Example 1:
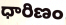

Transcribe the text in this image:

ధారిణం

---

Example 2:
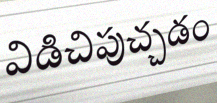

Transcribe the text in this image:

విడిచిపుచ్చడం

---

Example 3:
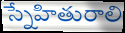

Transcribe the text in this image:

స్నేహితురాలి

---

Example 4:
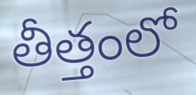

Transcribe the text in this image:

తీత్తంలో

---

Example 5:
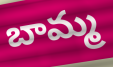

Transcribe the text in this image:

బామ్మ